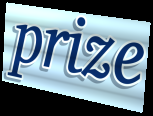
prize